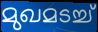
മുഖമടച്ച്